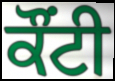
ਕੌਂਟੀ